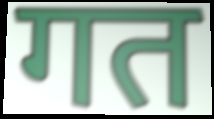
गत